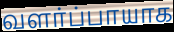
வளர்ப்பாயாக